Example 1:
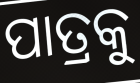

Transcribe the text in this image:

ପାତ୍ରକୁ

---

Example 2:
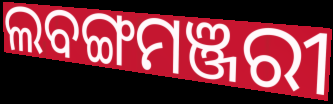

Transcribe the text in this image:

ଲବଙ୍ଗମଞ୍ଜରୀ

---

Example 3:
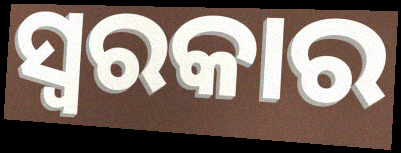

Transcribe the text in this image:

ସ୍ୱରକାର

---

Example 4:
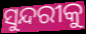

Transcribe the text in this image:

ସୁନ୍ଦରୀକୁ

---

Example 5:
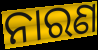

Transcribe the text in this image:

ନାରଣ